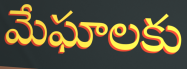
మేఘాలకు